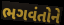
ભગવંતોને